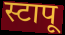
स्टापू